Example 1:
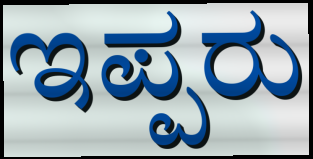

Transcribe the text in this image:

ಇಪ್ಪರು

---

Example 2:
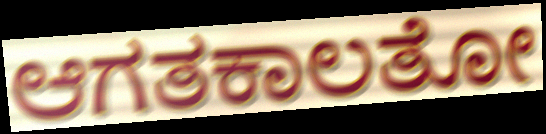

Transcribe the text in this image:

ಆಗತಕಾಲತೋ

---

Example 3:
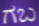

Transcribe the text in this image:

ಗಬ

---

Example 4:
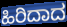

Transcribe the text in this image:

ಹಿರಿದಾದ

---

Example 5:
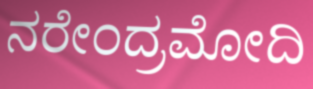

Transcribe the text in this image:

ನರೇಂದ್ರಮೋದಿ